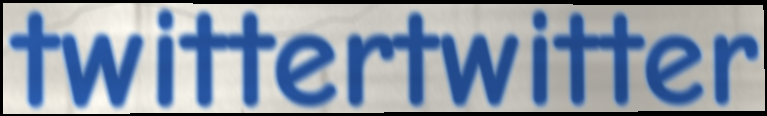
twittertwitter